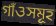
গাঁওসমূহ